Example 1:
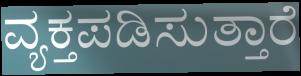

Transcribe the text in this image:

ವ್ಯಕ್ತಪಡಿಸುತ್ತಾರೆ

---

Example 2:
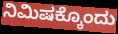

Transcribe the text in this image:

ನಿಮಿಷಕ್ಕೊಂದು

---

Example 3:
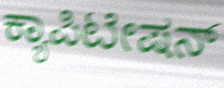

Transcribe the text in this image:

ಕ್ಯಾಪಿಟೇಷನ್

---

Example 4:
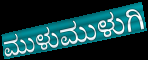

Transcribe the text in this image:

ಮುಳುಮುಳುಗಿ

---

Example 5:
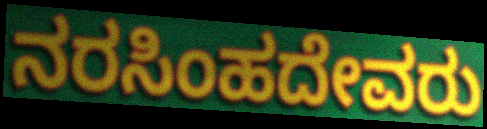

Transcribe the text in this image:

ನರಸಿಂಹದೇವರು